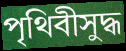
পৃথিবীসুদ্ধ